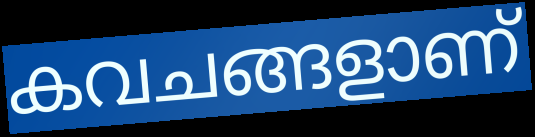
കവചങ്ങളാണ്